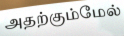
அதற்கும்மேல்